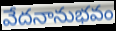
వేదనానుభవం